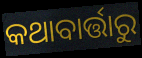
କଥାବାର୍ତ୍ତାରୁ